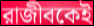
রাজীবকেই